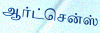
ஆர்ட்சென்ஸ்